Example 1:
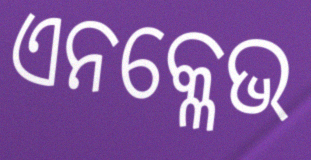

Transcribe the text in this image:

ଏନକ୍ଳେଭ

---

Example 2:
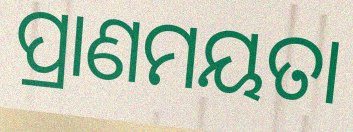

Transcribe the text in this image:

ପ୍ରାଣମୟତା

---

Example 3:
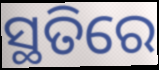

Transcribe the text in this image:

ସ୍ଥତିରେ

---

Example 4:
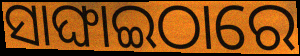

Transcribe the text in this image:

ସାଙ୍ଘାଇଠାରେ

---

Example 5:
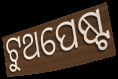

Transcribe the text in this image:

ଟୁଥପେଷ୍ଟ